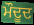
ਮੌਦੂਦ